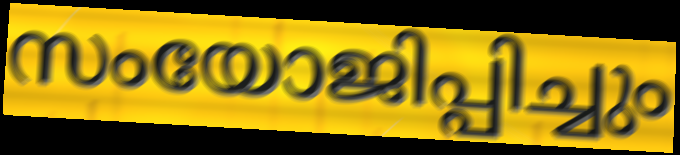
സംയോജിപ്പിച്ചും